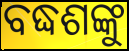
ବଦ୍ଧଶଙ୍କୁ